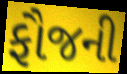
ફૌજની